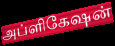
அப்ளிகேஷன்